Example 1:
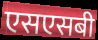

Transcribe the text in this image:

एसएसबी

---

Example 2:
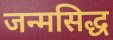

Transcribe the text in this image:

जन्मसिद्ध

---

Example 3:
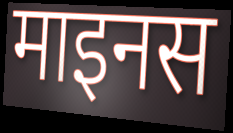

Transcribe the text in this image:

माइनस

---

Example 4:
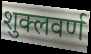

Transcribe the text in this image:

शुक्लवर्ण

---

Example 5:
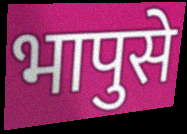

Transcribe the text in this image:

भापुसे